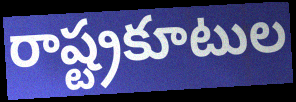
రాష్ట్రకూటుల